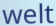
welt